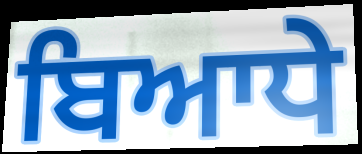
ਬਿਆਧੇ